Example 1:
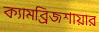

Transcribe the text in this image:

ক্যামব্রিজশায়ার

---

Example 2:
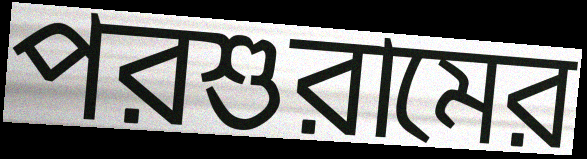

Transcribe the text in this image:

পরশুরামের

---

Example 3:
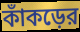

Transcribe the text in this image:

কাঁকড়ের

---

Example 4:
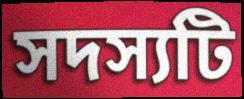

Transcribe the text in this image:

সদস্যটি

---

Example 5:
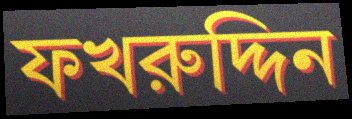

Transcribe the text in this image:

ফখরুদ্দিন